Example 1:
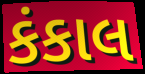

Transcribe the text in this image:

કંકાલ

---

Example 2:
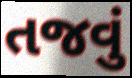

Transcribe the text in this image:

તજવું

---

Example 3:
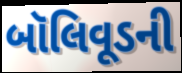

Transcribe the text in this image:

બૉલિવૂડની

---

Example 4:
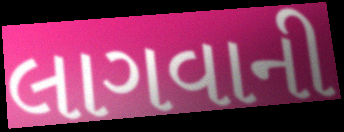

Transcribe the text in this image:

લાગવાની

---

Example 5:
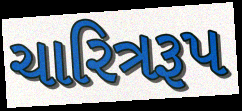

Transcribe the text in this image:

ચારિત્રરૂપ